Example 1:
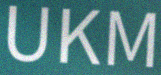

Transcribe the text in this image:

UKM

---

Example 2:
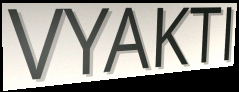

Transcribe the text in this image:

VYAKTI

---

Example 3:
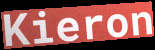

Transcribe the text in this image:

Kieron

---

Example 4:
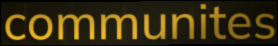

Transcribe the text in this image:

communites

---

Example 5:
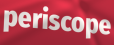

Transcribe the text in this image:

periscope